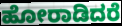
ಹೋರಾಡಿದರೆ